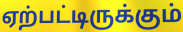
ஏற்பட்டிருக்கும்